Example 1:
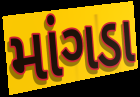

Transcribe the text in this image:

માંગડા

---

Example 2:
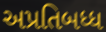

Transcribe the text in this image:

અપ્રતિબધ્ધ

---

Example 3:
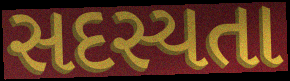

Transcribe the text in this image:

સદસ્યતા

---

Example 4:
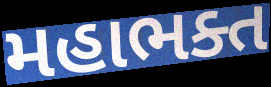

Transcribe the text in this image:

મહાભક્ત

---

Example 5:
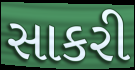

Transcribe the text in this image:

સાકરી